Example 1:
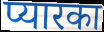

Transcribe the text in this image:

प्यारका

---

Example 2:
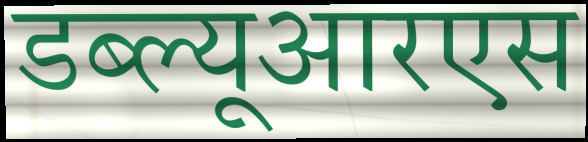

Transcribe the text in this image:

डब्ल्यूआरएस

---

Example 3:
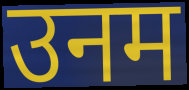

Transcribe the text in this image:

उनम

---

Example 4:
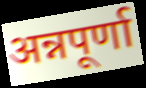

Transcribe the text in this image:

अन्नपूर्णा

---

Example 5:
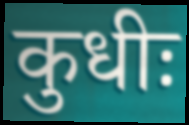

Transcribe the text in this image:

कुधीः